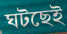
ঘটছেই